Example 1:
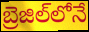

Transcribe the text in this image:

బ్రెజిల్‌లోనే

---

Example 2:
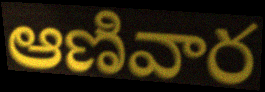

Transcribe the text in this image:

ఆణివార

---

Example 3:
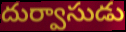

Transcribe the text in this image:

దుర్వాసుడు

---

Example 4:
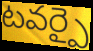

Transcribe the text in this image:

టవర్పై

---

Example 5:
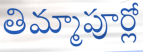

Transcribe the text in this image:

తిమ్మాపూర్లో